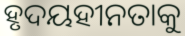
ହୃଦୟହୀନତାକୁ